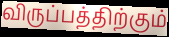
விருப்பத்திற்கும்